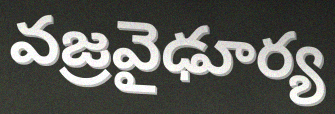
వజ్రవైఢూర్య